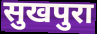
सुखपुरा